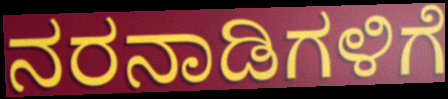
ನರನಾಡಿಗಳಿಗೆ